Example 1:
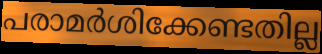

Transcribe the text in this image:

പരാമർശിക്കേണ്ടതില്ല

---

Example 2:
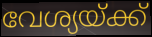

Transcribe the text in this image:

വേശ്യയ്ക്ക്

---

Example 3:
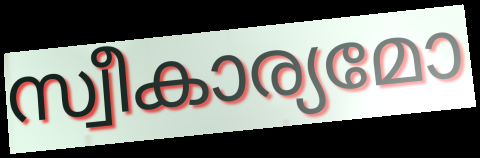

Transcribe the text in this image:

സ്വീകാര്യമോ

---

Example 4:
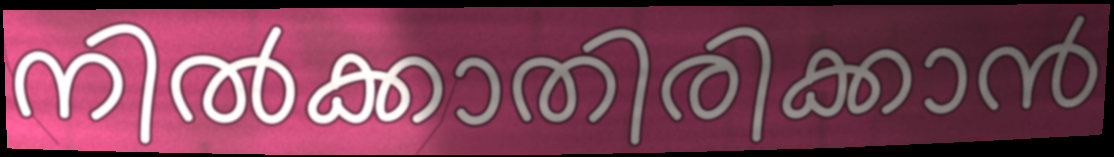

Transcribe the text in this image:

നിൽക്കാതിരിക്കാൻ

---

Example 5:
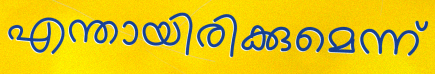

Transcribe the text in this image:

എന്തായിരിക്കുമെന്ന്